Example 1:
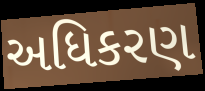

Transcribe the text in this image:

અધિકરણ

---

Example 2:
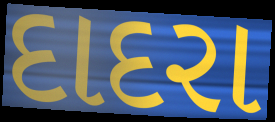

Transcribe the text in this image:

દાદરા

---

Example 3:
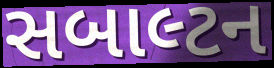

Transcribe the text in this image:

સબાલ્ટન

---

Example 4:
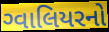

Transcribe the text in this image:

ગ્વાલિયરનો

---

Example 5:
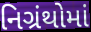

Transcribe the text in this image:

નિગ્રંથોમાં